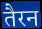
तैरन